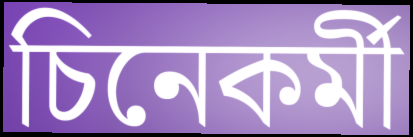
চিনেকৰ্মী